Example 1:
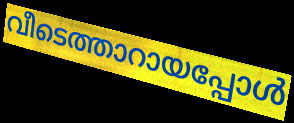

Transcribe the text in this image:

വീടെത്താറായപ്പോൾ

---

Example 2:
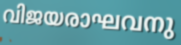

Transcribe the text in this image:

വിജയരാഘവനു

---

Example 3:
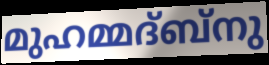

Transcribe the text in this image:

മുഹമ്മദ്ബ്നു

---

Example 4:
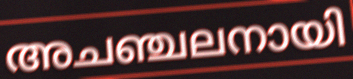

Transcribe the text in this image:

അചഞ്ചലനായി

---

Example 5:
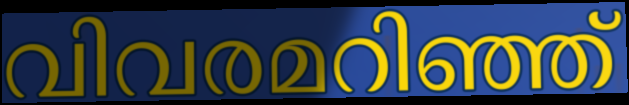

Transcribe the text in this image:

വിവരമറിഞ്ഞ്